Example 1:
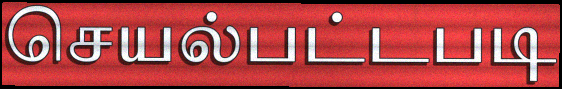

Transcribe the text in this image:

செயல்பட்டபடி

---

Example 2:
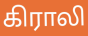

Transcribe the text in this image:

கிராலி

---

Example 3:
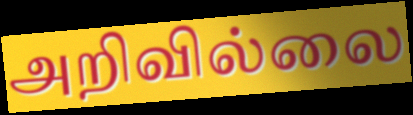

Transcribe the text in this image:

அறிவில்லை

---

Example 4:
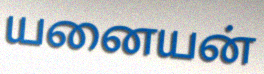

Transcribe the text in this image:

யனையன்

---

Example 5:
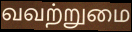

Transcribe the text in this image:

வவற்றுமை